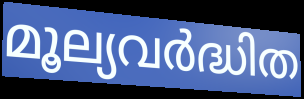
മൂല്യവർദ്ധിത